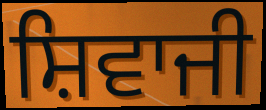
ਸ਼ਿਵਾਜੀ